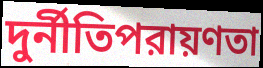
দুর্নীতিপরায়ণতা